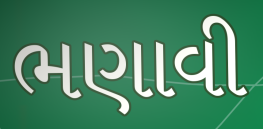
ભણાવી